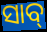
ସାବ୍